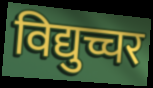
विद्युच्चर